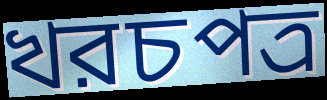
খরচপত্র